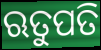
ଋତୁପତି